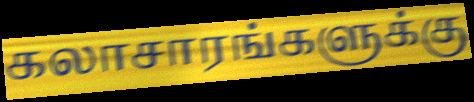
கலாசாரங்களுக்கு